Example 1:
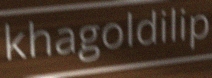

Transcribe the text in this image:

khagoldilip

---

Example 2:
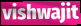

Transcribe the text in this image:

vishwajit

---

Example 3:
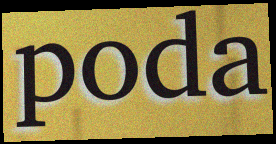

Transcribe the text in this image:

poda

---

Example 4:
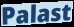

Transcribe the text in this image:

Palast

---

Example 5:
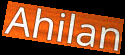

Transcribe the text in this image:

Ahilan